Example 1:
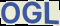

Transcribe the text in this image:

OGL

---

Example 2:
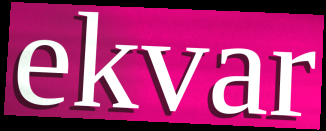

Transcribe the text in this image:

ekvar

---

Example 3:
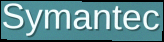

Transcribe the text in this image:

Symantec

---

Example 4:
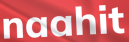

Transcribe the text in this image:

naahit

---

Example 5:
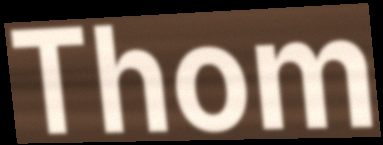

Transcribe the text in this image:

Thom